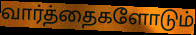
வார்த்தைகளோடும்